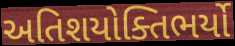
અતિશયોક્તિભર્યો